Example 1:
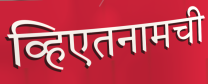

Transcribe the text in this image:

व्हिएतनामची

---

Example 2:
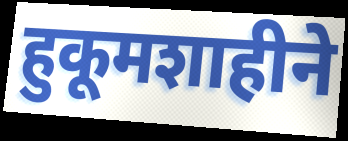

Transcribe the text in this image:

हुकूमशाहीने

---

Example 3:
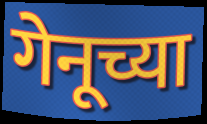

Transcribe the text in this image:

गेनूच्या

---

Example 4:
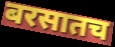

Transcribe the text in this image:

बरसातच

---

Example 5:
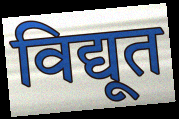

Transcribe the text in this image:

विद्यूत